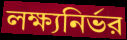
লক্ষ্যনির্ভর